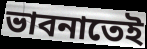
ভাবনাতেই